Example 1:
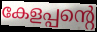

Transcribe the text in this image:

കേളപ്പന്റെ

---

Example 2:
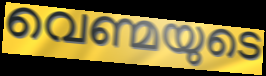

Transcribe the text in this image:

വെണ്മയുടെ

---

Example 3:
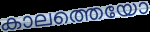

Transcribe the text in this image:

കാലത്തെയോ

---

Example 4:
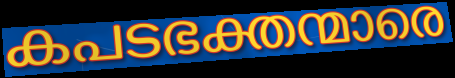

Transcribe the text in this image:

കപടഭക്തന്മാരെ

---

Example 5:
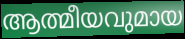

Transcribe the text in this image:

ആത്മീയവുമായ